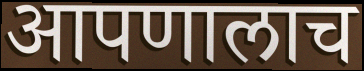
आपणालाच